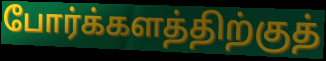
போர்க்களத்திற்குத்